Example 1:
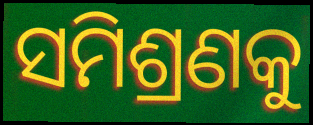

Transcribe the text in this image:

ସମିଶ୍ରଣକୁ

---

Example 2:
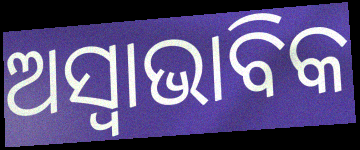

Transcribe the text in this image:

ଅସ୍ଵାଭାବିକ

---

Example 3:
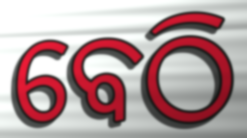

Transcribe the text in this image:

ବେଠି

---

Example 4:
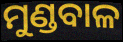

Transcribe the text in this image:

ମୁଣ୍ଡବାଳ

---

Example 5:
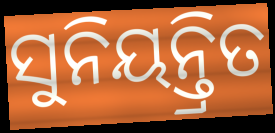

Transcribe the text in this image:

ସୁନିୟନ୍ତ୍ରିତ